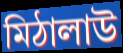
মিঠালাউ